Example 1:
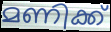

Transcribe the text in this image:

മണിക്ക്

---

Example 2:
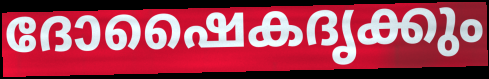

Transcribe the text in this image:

ദോഷൈകദൃക്കും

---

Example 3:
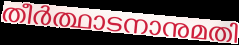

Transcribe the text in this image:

തീർത്ഥാടനാനുമതി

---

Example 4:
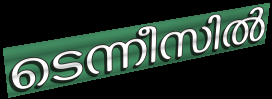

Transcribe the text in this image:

ടെന്നീസിൽ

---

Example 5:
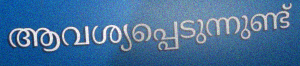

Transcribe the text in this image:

ആവശ്യപ്പെടുന്നുണ്ട്